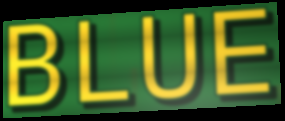
BLUE